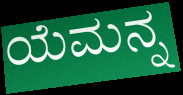
ಯೆಮನ್ನ